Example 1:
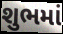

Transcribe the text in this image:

શુભમાં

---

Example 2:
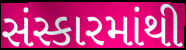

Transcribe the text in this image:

સંસ્કારમાંથી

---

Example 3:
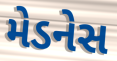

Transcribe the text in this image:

મેડનેસ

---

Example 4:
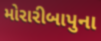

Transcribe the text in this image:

મોરારીબાપુના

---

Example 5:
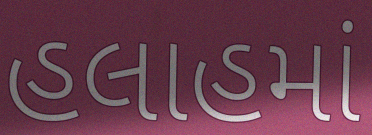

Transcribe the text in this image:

હલાહમાં